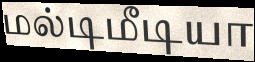
மல்டிமீடியா